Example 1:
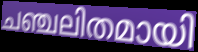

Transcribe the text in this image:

ചഞ്ചലിതമായി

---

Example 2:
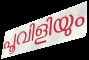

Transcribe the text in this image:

പൂവിളിയും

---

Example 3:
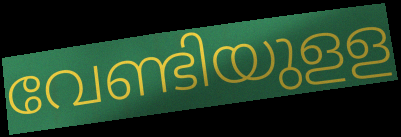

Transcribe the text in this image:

വേണ്ടിയുളള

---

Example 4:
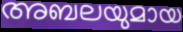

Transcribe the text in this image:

അബലയുമായ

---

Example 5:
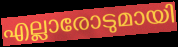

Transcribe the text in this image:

എല്ലാരോടുമായി